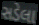
સડેલા